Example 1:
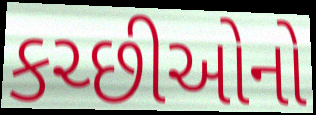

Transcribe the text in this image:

કચ્છીઓનો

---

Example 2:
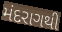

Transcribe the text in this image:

મંદરાગથી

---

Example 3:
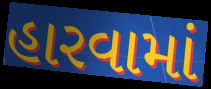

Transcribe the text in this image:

હારવામાં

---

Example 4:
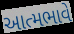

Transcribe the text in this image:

આત્મભાવે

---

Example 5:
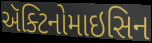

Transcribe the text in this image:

ઍક્ટિનોમાઇસિન